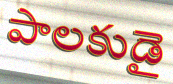
పాలకుడై